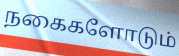
நகைகளோடும்